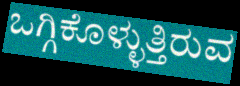
ಒಗ್ಗಿಕೊಳ್ಳುತ್ತಿರುವ